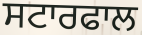
ਸਟਾਰਫਾਲ